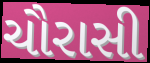
ચૌરાસી